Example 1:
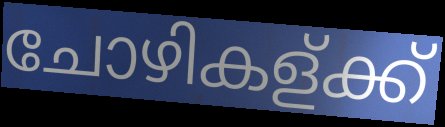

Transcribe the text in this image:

ചോഴികള്ക്ക്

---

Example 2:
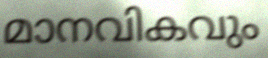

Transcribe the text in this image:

മാനവികവും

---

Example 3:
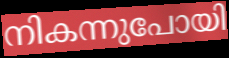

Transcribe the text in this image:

നികന്നുപോയി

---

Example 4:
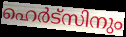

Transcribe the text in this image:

ഹെർട്സിനും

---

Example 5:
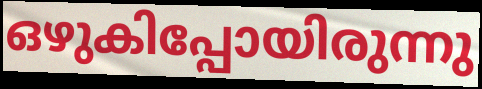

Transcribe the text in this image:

ഒഴുകിപ്പോയിരുന്നു